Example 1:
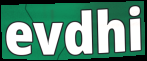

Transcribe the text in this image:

evdhi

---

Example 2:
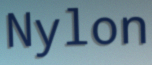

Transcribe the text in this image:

Nylon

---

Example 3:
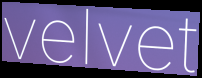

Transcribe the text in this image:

velvet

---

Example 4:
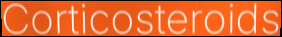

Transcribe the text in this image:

Corticosteroids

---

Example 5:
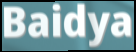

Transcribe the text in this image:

Baidya